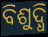
ବିଶୁଦ୍ଧି